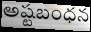
అష్టబంధన